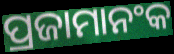
ପ୍ରଜାମାନଂକ